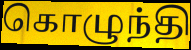
கொழுந்தி